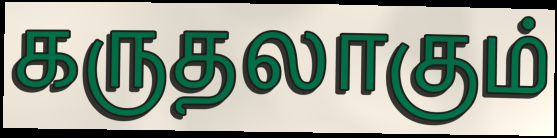
கருதலாகும்